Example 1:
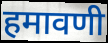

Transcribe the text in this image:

हमावणी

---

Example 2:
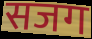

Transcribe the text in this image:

सजग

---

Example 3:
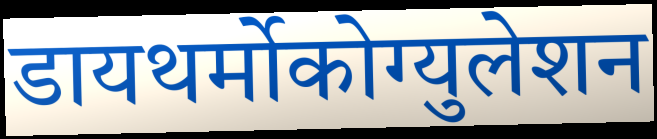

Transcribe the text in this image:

डायथर्मोकोग्युलेशन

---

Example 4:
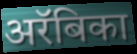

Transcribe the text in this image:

अरॅबिका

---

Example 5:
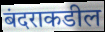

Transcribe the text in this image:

बंदराकडील